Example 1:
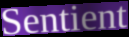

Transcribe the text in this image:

Sentient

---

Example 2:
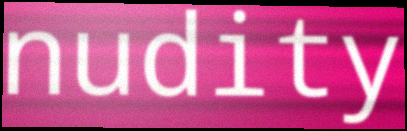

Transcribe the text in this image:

nudity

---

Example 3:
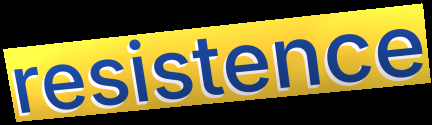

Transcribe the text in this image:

resistence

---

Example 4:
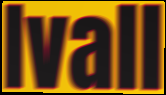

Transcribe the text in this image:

Ivall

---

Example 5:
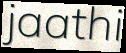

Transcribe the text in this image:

jaathi